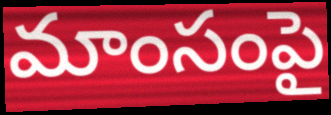
మాంసంపై